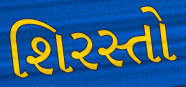
શિરસ્તો